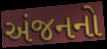
અંજનનો